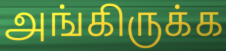
அங்கிருக்க